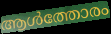
ആൾത്തോരം